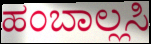
ಹಂಬಾಲ್ಲಸಿ